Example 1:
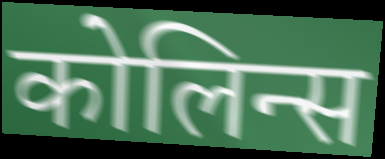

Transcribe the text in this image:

कोलिन्स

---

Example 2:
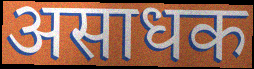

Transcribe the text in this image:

असाधक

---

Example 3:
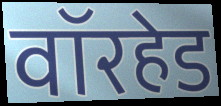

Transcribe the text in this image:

वॉरहेड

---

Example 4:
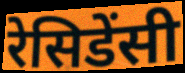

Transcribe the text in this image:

रेसिडेंसी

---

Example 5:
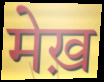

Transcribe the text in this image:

मेख़